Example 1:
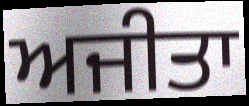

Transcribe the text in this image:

ਅਜੀਤਾ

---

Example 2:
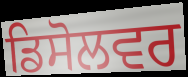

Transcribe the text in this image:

ਡਿਸੋਲਵਰ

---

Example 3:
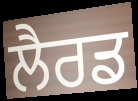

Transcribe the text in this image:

ਲੈਰਡ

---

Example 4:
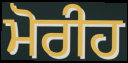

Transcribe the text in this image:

ਮੋਰੀਹ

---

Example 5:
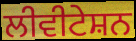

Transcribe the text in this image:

ਲੀਵੀਟੇਸ਼ਨ